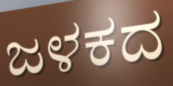
ಜಳಕದ